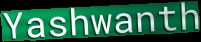
Yashwanth